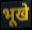
भूखे